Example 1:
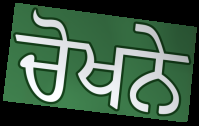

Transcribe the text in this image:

ਚੋਖਨੇ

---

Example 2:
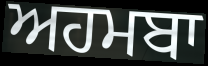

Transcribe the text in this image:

ਅਹਮਬਾ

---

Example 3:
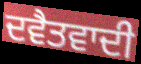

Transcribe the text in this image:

ਦਵੈਤਵਾਦੀ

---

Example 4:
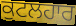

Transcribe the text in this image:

ਕੁਟਲਹਾਰ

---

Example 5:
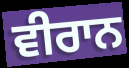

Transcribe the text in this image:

ਵੀਰਾਨ